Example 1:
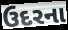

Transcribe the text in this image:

ઉદરના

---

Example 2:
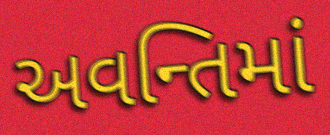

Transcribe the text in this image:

અવન્તિમાં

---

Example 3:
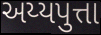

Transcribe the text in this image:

અય્યપુત્તા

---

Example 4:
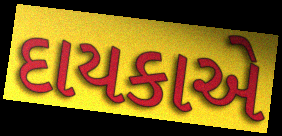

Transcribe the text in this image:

દાયકાએ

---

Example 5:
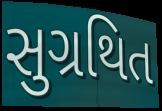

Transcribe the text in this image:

સુગ્રથિત